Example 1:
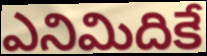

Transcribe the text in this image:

ఎనిమిదికే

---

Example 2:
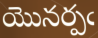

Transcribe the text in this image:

యొనర్పఁ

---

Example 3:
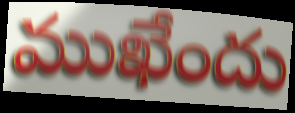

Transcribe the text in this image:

ముఖేందు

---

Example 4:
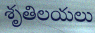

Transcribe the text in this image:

శృతిలయలు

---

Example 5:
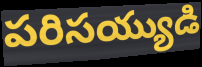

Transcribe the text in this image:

పరిసయ్యుడి